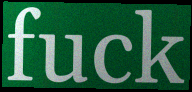
fuck